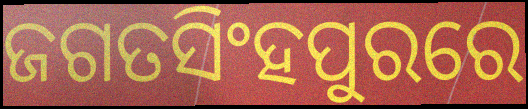
ଜଗତସିଂହପୁରରେ